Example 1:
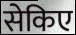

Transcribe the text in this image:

सेकिए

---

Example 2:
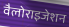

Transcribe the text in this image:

वैलोराइजेशन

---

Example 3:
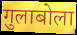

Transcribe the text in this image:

गुलाबोला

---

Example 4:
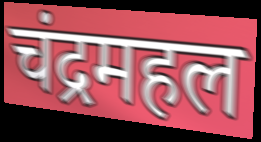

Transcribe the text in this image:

चंद्रमहल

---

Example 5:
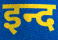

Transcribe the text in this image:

इन्द